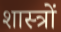
शास्त्रों